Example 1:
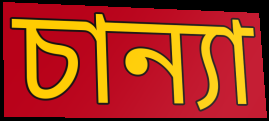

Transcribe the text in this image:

চান্যা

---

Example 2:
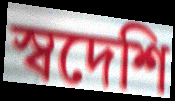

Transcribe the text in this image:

স্বদেশি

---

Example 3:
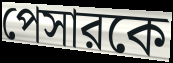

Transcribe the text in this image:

পেসারকে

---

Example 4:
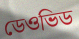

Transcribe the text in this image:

ডেওভিড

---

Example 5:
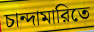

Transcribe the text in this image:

চান্দামারিতে